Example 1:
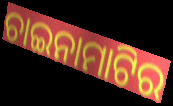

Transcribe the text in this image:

ଚାଇନାମାଟିର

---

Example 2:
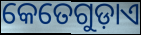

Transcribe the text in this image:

କେତେଗୁଡ଼ାଏ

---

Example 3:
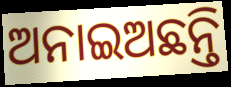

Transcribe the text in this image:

ଅନାଇଅଛନ୍ତି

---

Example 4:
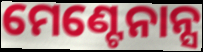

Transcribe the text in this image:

ମେଣ୍ଟେନାନ୍ସ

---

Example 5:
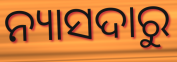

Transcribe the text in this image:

ନ୍ୟାସଦାରୁ